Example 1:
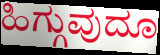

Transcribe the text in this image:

ಹಿಗ್ಗುವುದೂ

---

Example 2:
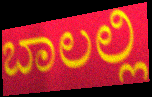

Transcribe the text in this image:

ಬಾಲಲ್ಲಿ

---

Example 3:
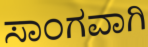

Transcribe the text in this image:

ಸಾಂಗವಾಗಿ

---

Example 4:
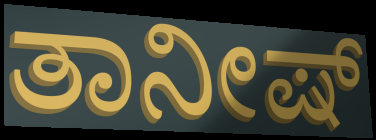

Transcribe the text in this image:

ತಾನೀಷ್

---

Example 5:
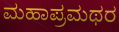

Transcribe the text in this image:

ಮಹಾಪ್ರಮಥರ